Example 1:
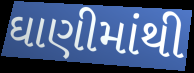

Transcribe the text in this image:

ઘાણીમાંથી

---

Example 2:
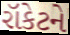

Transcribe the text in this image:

રૉકેટને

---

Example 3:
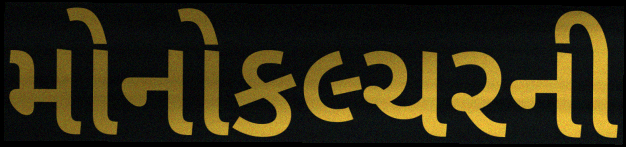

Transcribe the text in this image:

મોનોકલ્ચરની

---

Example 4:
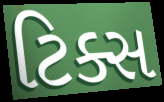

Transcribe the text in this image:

ટિક્સ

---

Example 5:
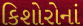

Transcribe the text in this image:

કિશોરોનાં